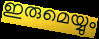
ഇരുമെയ്യും